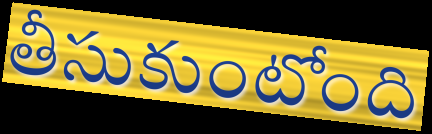
తీసుకుంటోంది